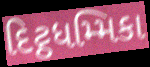
દિટ્ઠધમ્મિકા